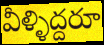
వీళ్ళిద్దరూ